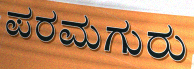
ಪರಮಗುರು